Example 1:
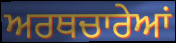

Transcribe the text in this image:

ਅਰਥਚਾਰੇਆਂ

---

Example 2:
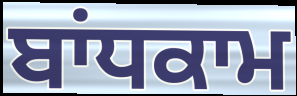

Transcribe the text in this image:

ਬਾਂਧਕਾਮ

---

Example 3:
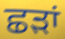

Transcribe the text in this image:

ਛੜਾਂ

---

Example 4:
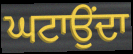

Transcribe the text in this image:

ਘਟਾਉੁਂਦਾ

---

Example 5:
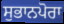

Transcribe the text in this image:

ਸੁਭਾਨਪੋਰਾ